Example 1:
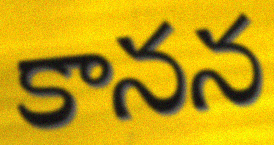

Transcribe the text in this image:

కానన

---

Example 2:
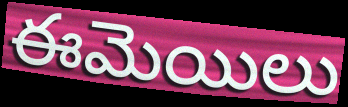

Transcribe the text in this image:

ఈమెయిలు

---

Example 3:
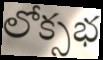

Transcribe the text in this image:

లోక్సభ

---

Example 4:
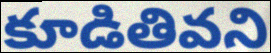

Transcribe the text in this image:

కూడితివని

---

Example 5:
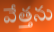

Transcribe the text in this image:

వేత్తను